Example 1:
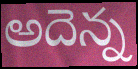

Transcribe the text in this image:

అదెన్న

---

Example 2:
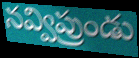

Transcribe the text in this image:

నవ్విప్రుండు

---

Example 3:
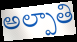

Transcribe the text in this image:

అల్పాతి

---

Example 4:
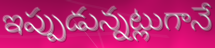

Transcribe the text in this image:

ఇప్పుడున్నట్లుగానే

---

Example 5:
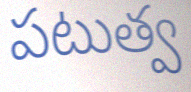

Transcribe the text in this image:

పటుత్వ